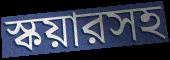
স্কয়ারসহ